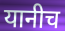
यानीच